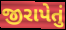
જીરાપેતું